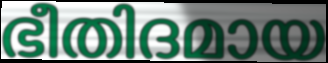
ഭീതിദമായ